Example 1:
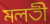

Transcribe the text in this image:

মলতী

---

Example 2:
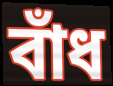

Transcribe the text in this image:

বাঁধ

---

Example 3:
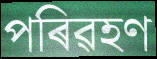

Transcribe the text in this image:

পৰিৱহণ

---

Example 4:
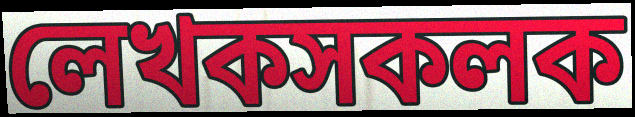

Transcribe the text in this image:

লেখকসকলক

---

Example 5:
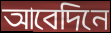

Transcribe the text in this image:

আবেদিনে